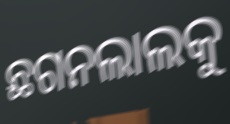
ଛଗନଲାଲକୁ